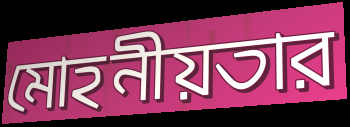
মোহনীয়তার